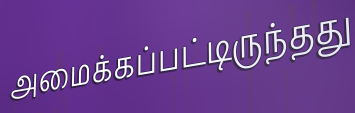
அமைக்கப்பட்டிருந்தது